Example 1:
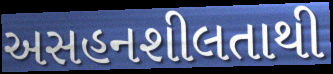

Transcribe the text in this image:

અસહનશીલતાથી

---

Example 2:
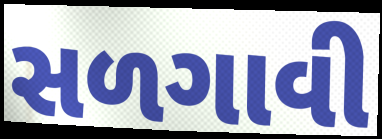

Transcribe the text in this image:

સળગાવી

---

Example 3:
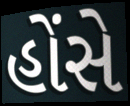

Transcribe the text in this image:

હોંસે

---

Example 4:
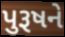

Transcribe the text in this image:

પુરૂષને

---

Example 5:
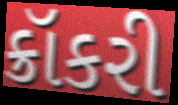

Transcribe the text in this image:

ક્રૉકરી